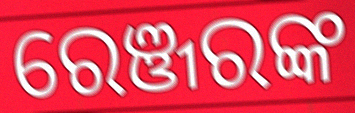
ରେଞ୍ଜରଙ୍କ